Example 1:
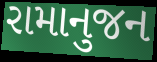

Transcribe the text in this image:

રામાનુજન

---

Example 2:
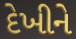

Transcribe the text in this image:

દેખીને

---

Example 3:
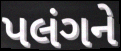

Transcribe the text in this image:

પલંગને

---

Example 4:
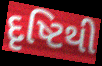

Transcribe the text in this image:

દૃષ્ટિથી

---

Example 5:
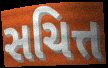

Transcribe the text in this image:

સચિત્ત